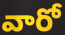
వారో